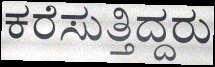
ಕರೆಸುತ್ತಿದ್ದರು